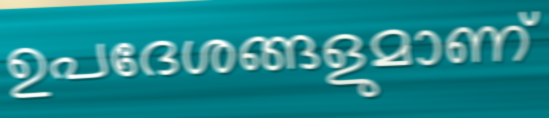
ഉപദേശങ്ങളുമാണ്